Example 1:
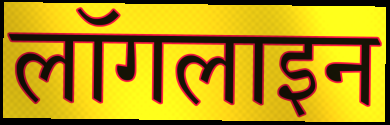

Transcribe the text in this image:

लॉगलाइन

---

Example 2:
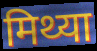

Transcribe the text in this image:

मिथ्‍या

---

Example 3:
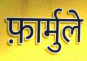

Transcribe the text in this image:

फ़ार्मुले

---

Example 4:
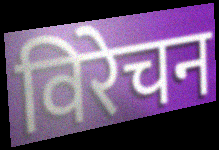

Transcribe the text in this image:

विरेचन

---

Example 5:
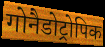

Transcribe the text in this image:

गोनैडोट्रोपिक